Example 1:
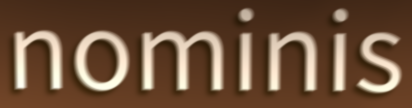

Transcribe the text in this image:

nominis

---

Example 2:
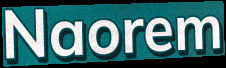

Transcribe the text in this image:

Naorem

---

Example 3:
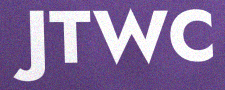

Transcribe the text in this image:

JTWC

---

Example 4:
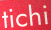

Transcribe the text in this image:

tichi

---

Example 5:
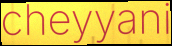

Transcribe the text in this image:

cheyyani